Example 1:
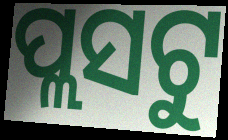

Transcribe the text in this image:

ପ୍ଲସଟୁ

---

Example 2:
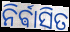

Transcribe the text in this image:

ନିର୍ଵାସିତ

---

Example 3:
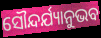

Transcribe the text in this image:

ସୌନ୍ଦର୍ଯ୍ୟାନୁଭବ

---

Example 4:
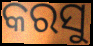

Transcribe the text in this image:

କରସୁ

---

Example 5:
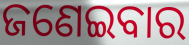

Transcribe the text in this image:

ଜଣେଇବାର